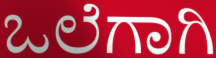
ಒಲೆಗಾಗಿ